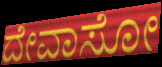
ದೇವಾಸೋ